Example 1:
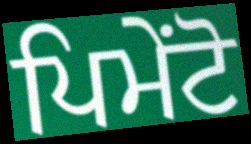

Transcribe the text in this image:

ਪਿਮੇਂਟੋ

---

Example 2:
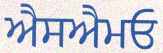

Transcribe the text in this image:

ਐਸਐਮਓ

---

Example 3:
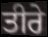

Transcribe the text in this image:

ਤੀਰੇ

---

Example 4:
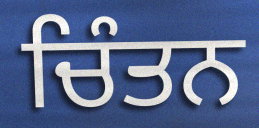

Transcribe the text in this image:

ਚਿੰਤਨ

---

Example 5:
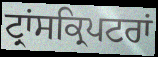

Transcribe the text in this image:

ਟ੍ਰਾਂਸਕ੍ਰਿਪਟਰਾਂ